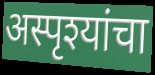
अस्पृश्यांचा